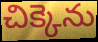
చిక్కెను